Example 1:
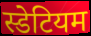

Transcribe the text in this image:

स्डेटियम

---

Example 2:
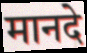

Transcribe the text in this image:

मानदे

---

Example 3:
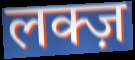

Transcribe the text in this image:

लक्ज़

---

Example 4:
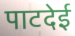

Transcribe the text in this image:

पाटदेई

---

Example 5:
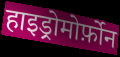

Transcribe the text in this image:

हाइड्रोमोर्फ़ोन